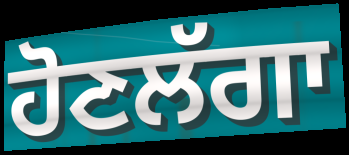
ਹੋਣਲੱਗਾ